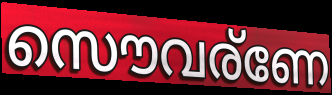
സൌവര്ണേ